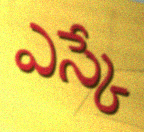
ఎస్కే